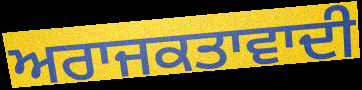
ਅਰਾਜਕਤਾਵਾਦੀ